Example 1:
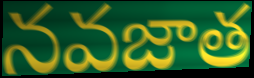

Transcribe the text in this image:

నవజాత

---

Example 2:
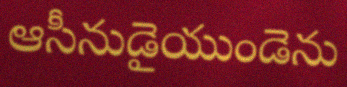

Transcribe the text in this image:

ఆసీనుడైయుండెను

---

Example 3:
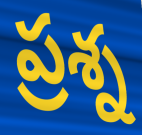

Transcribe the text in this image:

ప్రశ్న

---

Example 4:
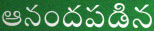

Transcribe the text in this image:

ఆనందపడిన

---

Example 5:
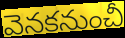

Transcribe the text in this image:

వెనకనుంచీ